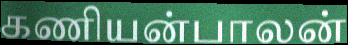
கணியன்பாலன்